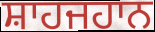
ਸ਼ਾਹਜਹਾਨ